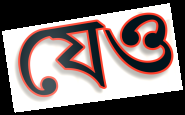
যেও